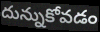
దున్నుకోవడం